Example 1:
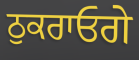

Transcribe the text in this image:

ਠੁਕਰਾਓਗੇ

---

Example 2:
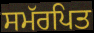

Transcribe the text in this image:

ਸਮੱਰਪਿਤ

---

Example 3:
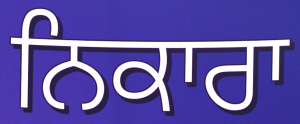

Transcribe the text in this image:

ਨਿਕਾਰਾ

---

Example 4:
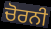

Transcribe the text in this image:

ਚੋਰਨੀ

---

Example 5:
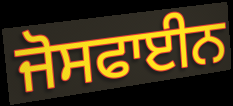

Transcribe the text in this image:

ਜੋਸਫਾਈਨ